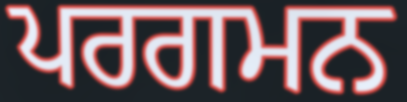
ਪਰਗਮਨ